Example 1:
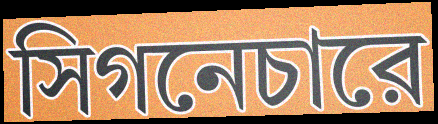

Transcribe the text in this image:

সিগনেচারে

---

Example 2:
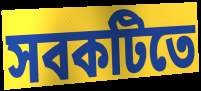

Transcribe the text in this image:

সবকটিতে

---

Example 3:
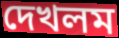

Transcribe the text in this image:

দেখলম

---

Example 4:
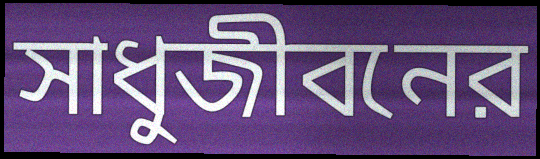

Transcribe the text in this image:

সাধুজীবনের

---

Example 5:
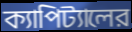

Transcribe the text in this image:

ক্যাপিট্যালের